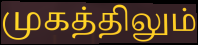
முகத்திலும்